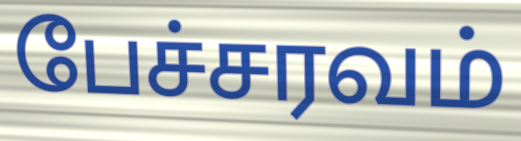
பேச்சரவம்